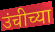
उंचीच्या